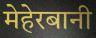
मेहेरबानी